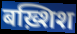
बख़्शिश